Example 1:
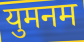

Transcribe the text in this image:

युमनम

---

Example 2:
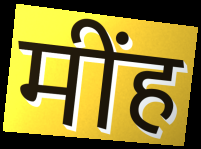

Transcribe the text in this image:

मींह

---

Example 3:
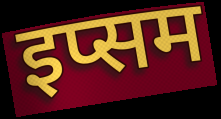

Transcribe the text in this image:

इप्सम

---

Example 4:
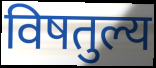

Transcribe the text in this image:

विषतुल्य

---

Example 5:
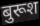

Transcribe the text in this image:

बुरूश